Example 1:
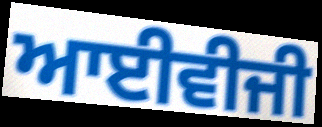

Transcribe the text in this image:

ਆਈਵੀਜੀ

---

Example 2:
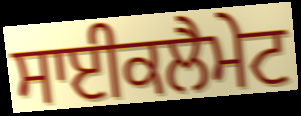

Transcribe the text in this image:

ਸਾਈਕਲੈਮੇਟ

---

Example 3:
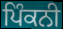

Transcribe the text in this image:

ਪਿੰਕਨੀ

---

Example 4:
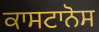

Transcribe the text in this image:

ਕਾਸਟਾਨੋਸ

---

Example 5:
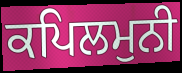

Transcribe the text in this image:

ਕਪਿਲਮੁਨੀ